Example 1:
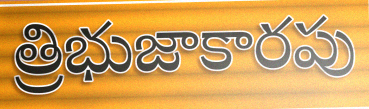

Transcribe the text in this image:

త్రిభుజాకారపు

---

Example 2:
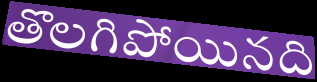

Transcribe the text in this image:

తొలగిపోయినది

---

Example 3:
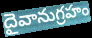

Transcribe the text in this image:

దైవానుగ్రహం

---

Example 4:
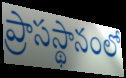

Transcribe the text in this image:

ప్రాసస్థానంలో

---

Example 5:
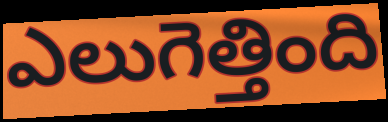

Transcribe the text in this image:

ఎలుగెత్తింది